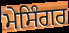
ਮੇਸਿੰਗਰ